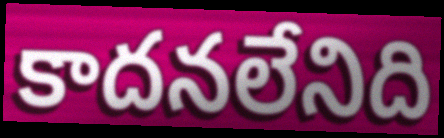
కాదనలేనిది